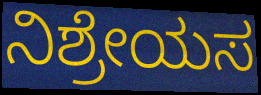
ನಿಶ್ರೇಯಸ